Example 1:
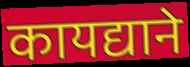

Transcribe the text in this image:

कायद्याने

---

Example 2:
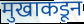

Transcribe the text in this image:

मुखाकडून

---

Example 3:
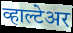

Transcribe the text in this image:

व्हाल्टेअर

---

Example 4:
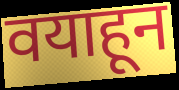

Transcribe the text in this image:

वयाहून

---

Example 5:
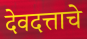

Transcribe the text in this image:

देवदत्ताचे